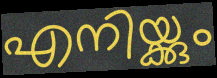
എനിയ്ക്കും